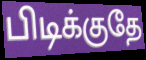
பிடிக்குதே